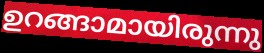
ഉറങ്ങാമായിരുന്നു